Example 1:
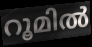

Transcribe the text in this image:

റൂമിൽ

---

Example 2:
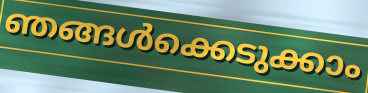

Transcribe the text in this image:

ഞങ്ങൾക്കെടുക്കാം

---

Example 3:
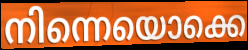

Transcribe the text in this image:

നിന്നെയൊക്കെ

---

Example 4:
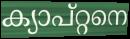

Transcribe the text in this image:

ക്യാപ്റ്റനെ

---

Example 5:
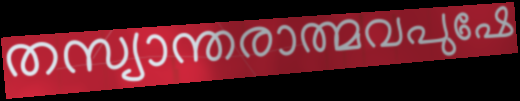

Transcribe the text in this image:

തസ്യാന്തരാത്മവപുഷേ